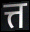
त्त